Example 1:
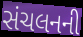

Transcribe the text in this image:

સંચલનની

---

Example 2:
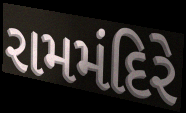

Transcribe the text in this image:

રામમંદિરે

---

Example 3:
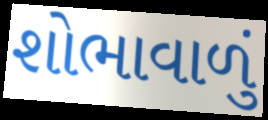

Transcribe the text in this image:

શોભાવાળું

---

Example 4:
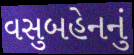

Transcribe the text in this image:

વસુબહેનનું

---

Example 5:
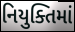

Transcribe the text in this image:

નિયુક્તિમાં